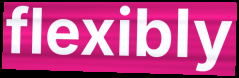
flexibly